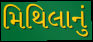
મિથિલાનું